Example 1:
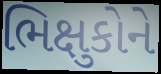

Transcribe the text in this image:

ભિક્ષુકોને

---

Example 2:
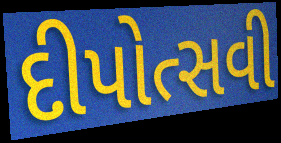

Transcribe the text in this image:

દીપોત્સવી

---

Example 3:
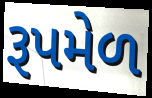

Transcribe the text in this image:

રૂપમેળ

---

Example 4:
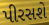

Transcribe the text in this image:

પીરસશે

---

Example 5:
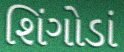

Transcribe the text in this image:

શિંગોડાં